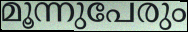
മൂന്നുപേരും